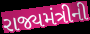
રાજ્યમંત્રીની